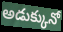
అడుక్కునో